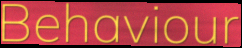
Behaviour